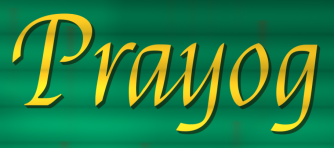
Prayog